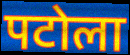
पटोला